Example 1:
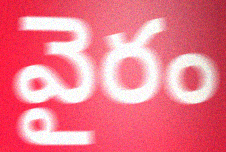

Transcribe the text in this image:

వైరం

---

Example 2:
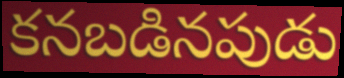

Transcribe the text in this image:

కనబడినపుడు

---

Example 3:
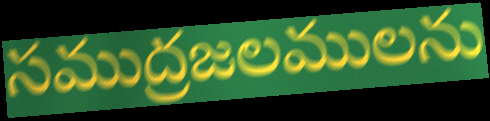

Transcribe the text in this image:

సముద్రజలములను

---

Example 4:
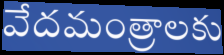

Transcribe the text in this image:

వేదమంత్రాలకు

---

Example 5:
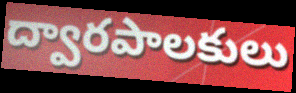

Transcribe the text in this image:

ద్వారపాలకులు